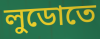
লুডোতে